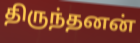
திருந்தனன்